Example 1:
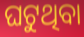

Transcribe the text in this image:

ଘଟୁଥିବା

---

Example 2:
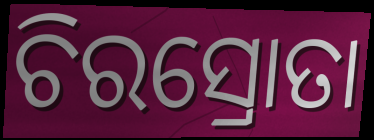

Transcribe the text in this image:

ଚିରସ୍ରୋତା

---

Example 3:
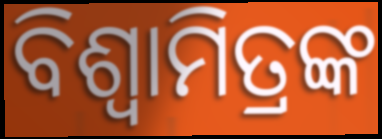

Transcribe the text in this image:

ବିଶ୍ଵାମିତ୍ରଙ୍କ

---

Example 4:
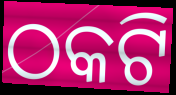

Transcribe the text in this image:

ଠକଟି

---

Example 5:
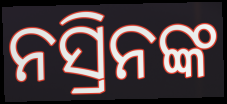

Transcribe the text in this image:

ନସ୍ରିନଙ୍କ